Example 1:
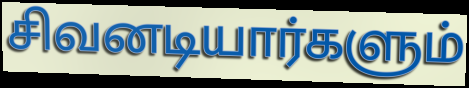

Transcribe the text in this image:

சிவனடியார்களும்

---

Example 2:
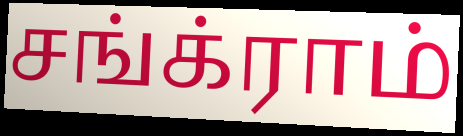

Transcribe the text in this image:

சங்க்ராம்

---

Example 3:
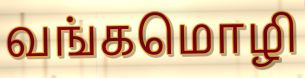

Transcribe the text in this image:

வங்கமொழி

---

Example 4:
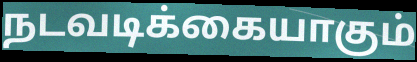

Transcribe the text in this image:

நடவடிக்கையாகும்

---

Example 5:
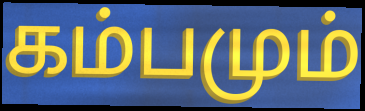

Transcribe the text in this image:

கம்பமும்